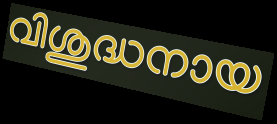
വിശുദ്ധനായ